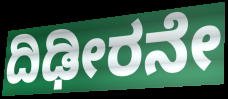
ದಿಢೀರನೇ